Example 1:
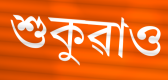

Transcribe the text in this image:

শুকুৱাও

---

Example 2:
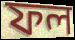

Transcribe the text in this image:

ফল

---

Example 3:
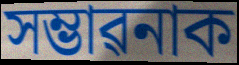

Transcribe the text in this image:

সম্ভাৱনাক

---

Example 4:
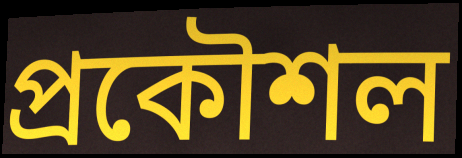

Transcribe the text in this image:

প্ৰকৌশল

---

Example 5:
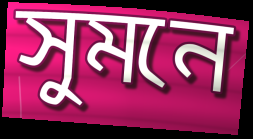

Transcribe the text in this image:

সুমনে